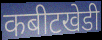
कबीटखेडी